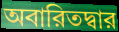
অবারিতদ্বার